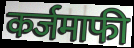
कर्जमाफी